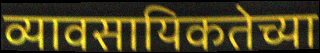
व्यावसायिकतेच्या